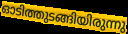
ഓടിത്തുടങ്ങിയിരുന്നു